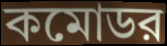
কমোডর